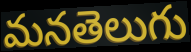
మనతెలుగు